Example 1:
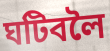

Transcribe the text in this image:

ঘটিবলৈ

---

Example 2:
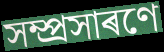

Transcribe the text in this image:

সম্প্ৰসাৰণে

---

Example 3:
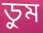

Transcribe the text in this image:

ডুম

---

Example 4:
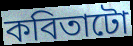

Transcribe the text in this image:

কবিতাটো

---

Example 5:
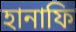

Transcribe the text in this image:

হানাফি